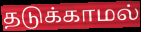
தடுக்காமல்